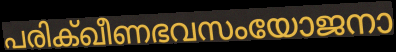
പരിക്ഖീണഭവസംയോജനാ